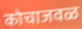
कोचाजवळ